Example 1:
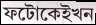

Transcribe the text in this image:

ফটোকেইখন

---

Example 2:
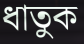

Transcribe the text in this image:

ধাতুক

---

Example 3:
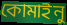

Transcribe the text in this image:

কোমাইনু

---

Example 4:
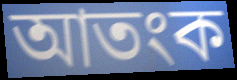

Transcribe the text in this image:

আতংক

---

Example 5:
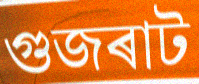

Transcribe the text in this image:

গুজৰাট